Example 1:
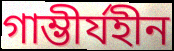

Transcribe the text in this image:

গাম্ভীর্যহীন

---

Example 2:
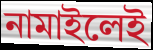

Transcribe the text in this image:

নামাইলেই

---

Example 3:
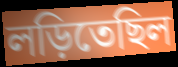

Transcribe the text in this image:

লড়িতেছিল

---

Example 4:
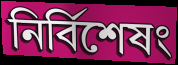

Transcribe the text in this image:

নির্বিশেষং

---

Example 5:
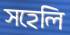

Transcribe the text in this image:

সহেলি